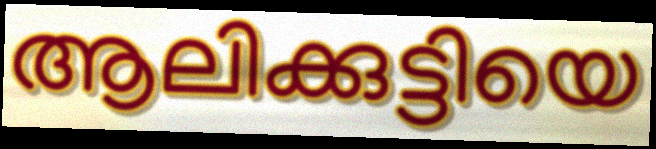
ആലിക്കുട്ടിയെ